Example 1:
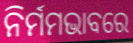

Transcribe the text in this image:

ନିର୍ମମଭାବରେ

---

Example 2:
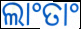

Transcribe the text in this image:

ଲାଂତାଂ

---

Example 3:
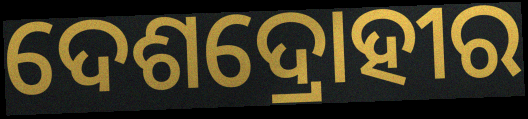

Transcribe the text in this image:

ଦେଶଦ୍ରୋହୀର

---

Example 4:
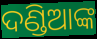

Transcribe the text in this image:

ଦଣ୍ଡିଆଙ୍କ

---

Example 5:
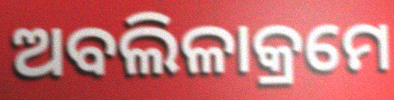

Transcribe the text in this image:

ଅବଲିଳାକ୍ରମେ